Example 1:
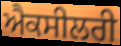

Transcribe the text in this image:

ਐਕਸੀਲਰੀ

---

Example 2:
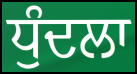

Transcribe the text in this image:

ਧੁੰਦਲਾ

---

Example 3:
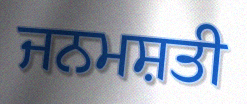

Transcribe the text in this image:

ਜਨਮਸ਼ਤੀ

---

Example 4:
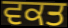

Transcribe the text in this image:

ਵਕਤ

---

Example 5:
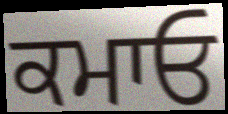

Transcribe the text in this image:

ਕਮਾਓ